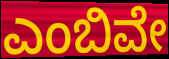
ಎಂಬಿವೇ